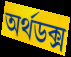
অর্থডক্স